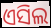
ଏସିଲ